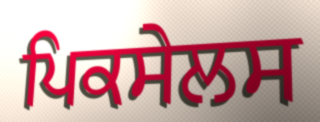
ਪਿਕਸੇਲਸ